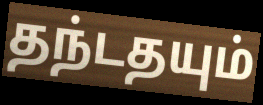
தந்டதயும்